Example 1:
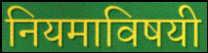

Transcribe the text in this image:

नियमाविषयी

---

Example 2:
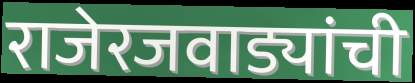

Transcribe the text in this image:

राजेरजवाड्यांची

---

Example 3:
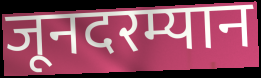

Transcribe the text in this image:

जूनदरम्यान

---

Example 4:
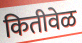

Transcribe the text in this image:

कितीवेळ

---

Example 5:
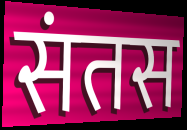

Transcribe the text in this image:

संतस